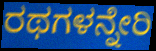
ರಥಗಳನ್ನೇರಿ